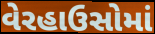
વેરહાઉસોમાં